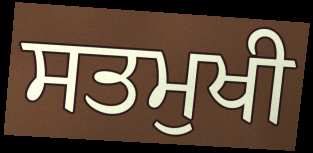
ਸਤਮੁਖੀ